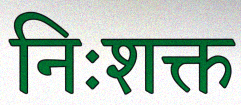
निःशक्त